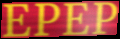
EPEP